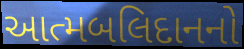
આત્મબલિદાનનો